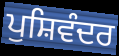
ਪੁਸ਼ਿਵੰਦਰ